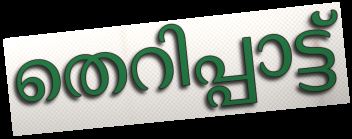
തെറിപ്പാട്ട്